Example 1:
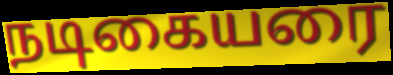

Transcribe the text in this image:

நடிகையரை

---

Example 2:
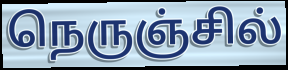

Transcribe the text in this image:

நெருஞ்சில்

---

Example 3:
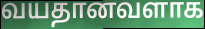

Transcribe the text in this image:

வயதானவளாக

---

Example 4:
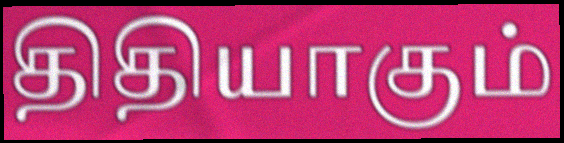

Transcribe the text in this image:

திதியாகும்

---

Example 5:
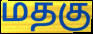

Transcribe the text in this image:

மதகு